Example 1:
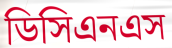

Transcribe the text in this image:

ডিসিএনএস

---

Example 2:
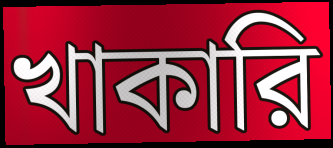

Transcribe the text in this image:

খাকারি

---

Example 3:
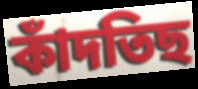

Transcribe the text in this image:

কাঁদতিছ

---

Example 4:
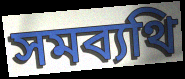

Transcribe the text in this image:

সমব্যথি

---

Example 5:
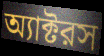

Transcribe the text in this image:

অ্যাক্টরস